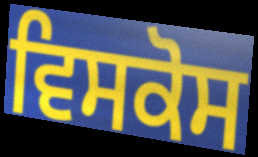
ਵਿਸਕੋਸ